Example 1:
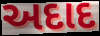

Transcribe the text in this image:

અદાદ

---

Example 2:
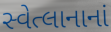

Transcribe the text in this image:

સ્વેત્લાનાનાં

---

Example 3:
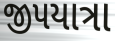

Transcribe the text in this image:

જીપયાત્રા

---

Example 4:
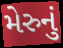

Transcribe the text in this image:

મેરુનું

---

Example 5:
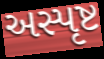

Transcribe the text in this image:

અસ્પૃષ્ટ